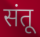
संतू